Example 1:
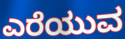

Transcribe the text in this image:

ಎರೆಯುವ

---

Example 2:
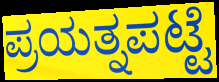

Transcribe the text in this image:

ಪ್ರಯತ್ನಪಟ್ಟೆ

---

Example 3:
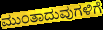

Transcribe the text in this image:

ಮುಂತಾದುವುಗಳಿಗೆ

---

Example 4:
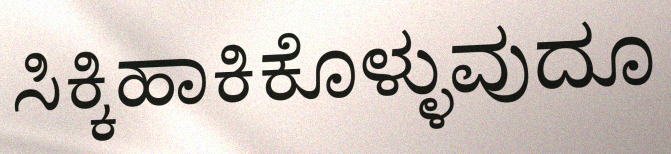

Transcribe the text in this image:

ಸಿಕ್ಕಿಹಾಕಿಕೊಳ್ಳುವುದೂ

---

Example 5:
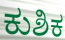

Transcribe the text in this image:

ಕುಶಿಕ